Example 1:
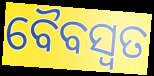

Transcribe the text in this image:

ବୈବସ୍ଵତ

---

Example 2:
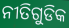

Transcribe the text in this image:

ନୀତିଗୁଡିକ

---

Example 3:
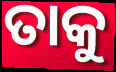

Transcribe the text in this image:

ତାକୁ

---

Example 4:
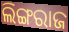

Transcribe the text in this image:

ଲିଙ୍ଗରାଜ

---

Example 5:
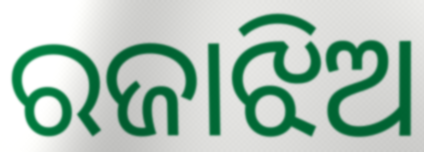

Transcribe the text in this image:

ରଜାଝିଅ